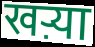
खऱ्‍या